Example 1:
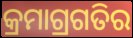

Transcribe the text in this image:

କ୍ରମାଗ୍ରଗତିର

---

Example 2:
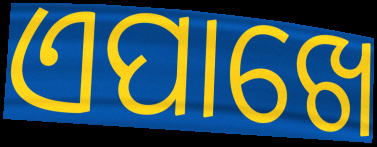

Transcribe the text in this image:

ଏପାଖେ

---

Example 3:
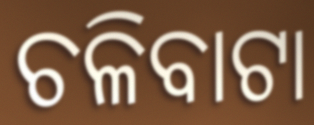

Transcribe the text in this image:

ଚଳିବାଟା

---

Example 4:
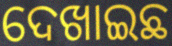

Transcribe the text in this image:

ଦେଖାଇଛ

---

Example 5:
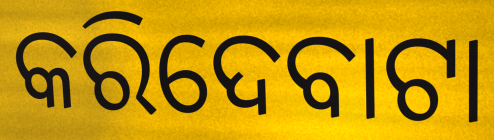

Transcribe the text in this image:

କରିଦେବାଟା